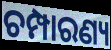
ଚମ୍ପାରଣ୍ୟ